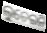
ଲୁଚେଇନି